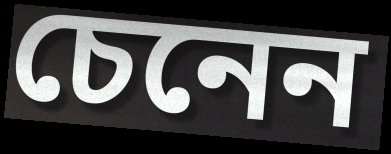
চেনেন